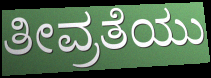
ತೀವ್ರತೆಯು